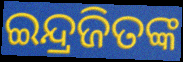
ଇନ୍ଦ୍ରଜିତଙ୍କ